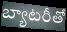
బ్యాటరీతో